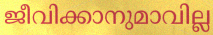
ജീവിക്കാനുമാവില്ല